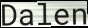
Dalen